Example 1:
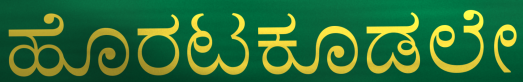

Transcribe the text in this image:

ಹೊರಟಕೂಡಲೇ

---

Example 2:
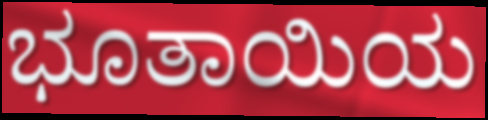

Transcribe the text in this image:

ಭೂತಾಯಿಯ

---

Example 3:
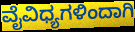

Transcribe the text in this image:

ವೈವಿಧ್ಯಗಳಿಂದಾಗಿ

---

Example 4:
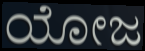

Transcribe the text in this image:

ಯೋಜ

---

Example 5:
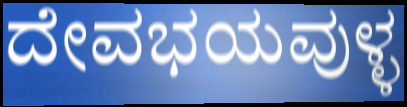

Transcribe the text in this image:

ದೇವಭಯವುಳ್ಳ